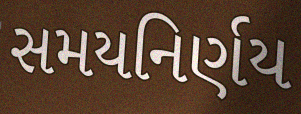
સમયનિર્ણય